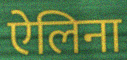
ऐलिना